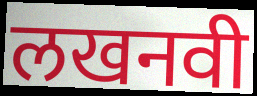
लखनवी